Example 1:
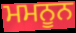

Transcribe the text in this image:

ਮਮਨੂਨ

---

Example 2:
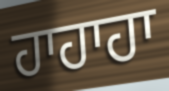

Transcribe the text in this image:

ਹਾਹਾਹਾ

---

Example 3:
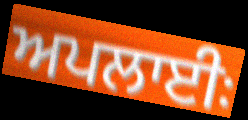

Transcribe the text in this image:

ਅਪਲਾਈਃ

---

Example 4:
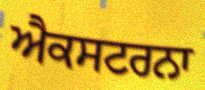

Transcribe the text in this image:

ਐਕਸਟਰਨਾ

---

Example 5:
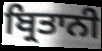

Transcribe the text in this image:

ਬ੍ਰਿਤਾਨੀ